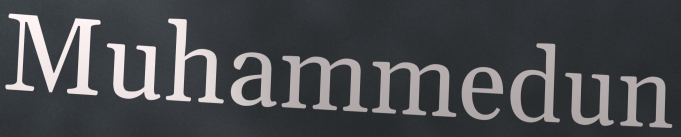
Muhammedun